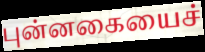
புன்னகையைச்